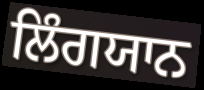
ਲਿੰਗਯਾਨ